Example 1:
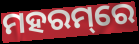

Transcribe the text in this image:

ମହରମ୍‌ରେ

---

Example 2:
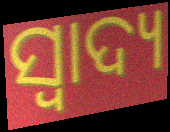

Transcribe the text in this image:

ସ୍ଵାଦ୍ୟ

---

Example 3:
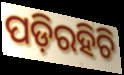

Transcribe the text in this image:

ପଡ଼ିରହିଚି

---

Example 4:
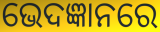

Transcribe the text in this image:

ଭେଦଜ୍ଞାନରେ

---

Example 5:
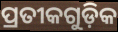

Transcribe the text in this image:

ପ୍ରତୀକଗୁଡ଼ିକ